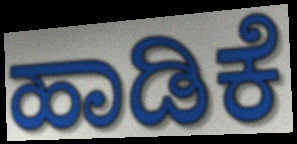
ಹಾಡಿಕೆ